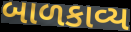
બાળકાવ્ય